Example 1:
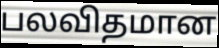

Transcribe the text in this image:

பலவிதமான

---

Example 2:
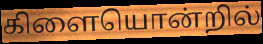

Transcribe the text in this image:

கிளையொன்றில்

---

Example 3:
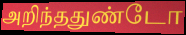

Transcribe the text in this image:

அறிந்ததுண்டோ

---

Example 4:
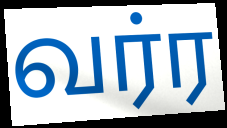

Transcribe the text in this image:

வர்ர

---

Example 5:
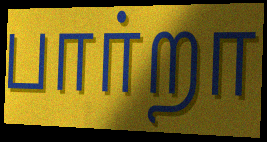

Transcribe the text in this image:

பார்றா